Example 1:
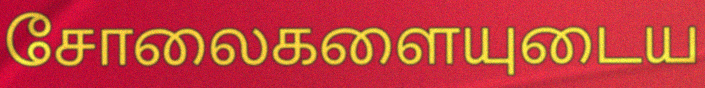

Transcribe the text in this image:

சோலைகளையுடைய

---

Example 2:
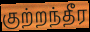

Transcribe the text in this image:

குற்றந்தீர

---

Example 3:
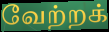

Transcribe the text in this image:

வேற்றக்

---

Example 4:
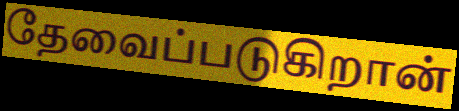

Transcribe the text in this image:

தேவைப்படுகிறான்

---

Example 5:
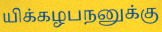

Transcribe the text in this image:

யிக்கழபநனுக்கு